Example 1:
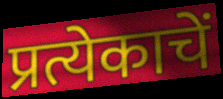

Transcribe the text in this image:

प्रत्येकाचें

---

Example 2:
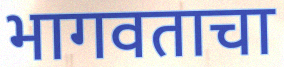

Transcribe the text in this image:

भागवताचा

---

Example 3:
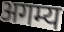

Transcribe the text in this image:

अगम्य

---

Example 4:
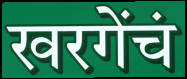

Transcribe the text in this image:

खरगेंचं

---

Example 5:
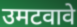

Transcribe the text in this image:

उमटवावे